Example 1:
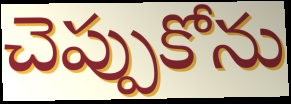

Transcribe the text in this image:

చెప్పుకోను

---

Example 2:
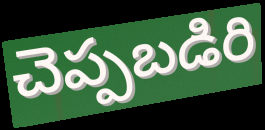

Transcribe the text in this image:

చెప్పబడిరి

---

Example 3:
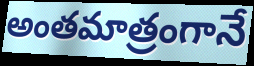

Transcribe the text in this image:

అంతమాత్రంగానే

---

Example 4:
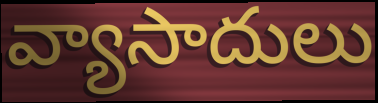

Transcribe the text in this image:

వ్యాసాదులు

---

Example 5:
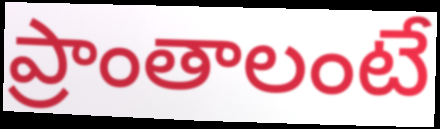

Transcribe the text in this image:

ప్రాంతాలంటే